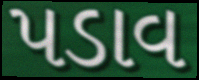
પડાવ